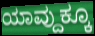
ಯಾವ್ದುಕ್ಕೂ